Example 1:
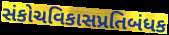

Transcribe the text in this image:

સંકોચવિકાસપ્રતિબંધક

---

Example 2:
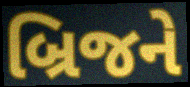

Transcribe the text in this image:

બ્રિજને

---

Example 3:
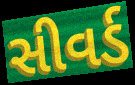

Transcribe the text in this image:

સીવર્ડ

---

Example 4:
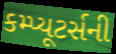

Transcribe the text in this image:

કમ્પ્યૂટર્સની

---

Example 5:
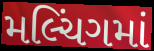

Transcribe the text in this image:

મલ્ચિંગમાં